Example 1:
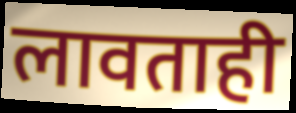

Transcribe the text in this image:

लावताही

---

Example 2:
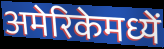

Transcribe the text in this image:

अमेरिकेमध्यें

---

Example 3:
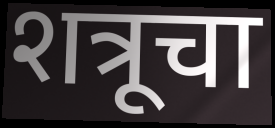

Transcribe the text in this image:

शत्रूचा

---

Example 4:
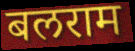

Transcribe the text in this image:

बलराम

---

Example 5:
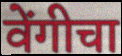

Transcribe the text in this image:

वेंगीचा